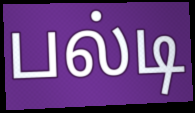
பல்டி